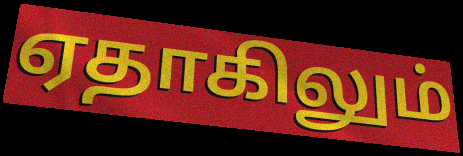
ஏதாகிலும்